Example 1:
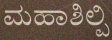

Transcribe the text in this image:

ಮಹಾಶಿಲ್ಪಿ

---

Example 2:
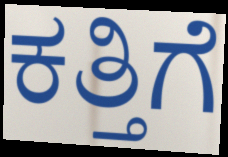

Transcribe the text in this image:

ಕತ್ತಿಗೆ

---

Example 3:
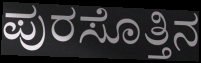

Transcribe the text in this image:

ಪುರಸೊತ್ತಿನ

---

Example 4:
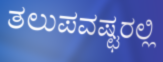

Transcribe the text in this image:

ತಲುಪವಷ್ಟರಲ್ಲಿ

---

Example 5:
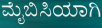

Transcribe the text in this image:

ಮೈಬಿಸಿಯಾಗಿ